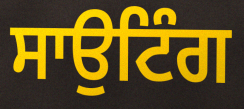
ਸਾਉਟਿੰਗ